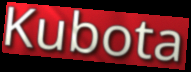
Kubota